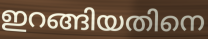
ഇറങ്ങിയതിനെ